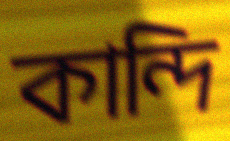
কান্দি